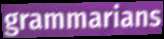
grammarians